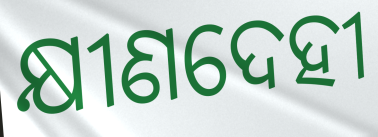
କ୍ଷୀଣଦେହୀ